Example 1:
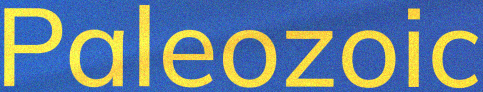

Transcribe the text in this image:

Paleozoic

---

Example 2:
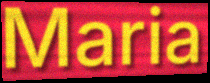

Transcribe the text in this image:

Maria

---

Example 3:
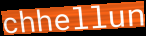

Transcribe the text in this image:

chhellun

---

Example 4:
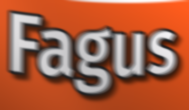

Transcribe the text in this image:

Fagus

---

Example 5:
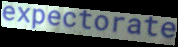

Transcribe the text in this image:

expectorate